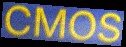
CMOS